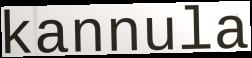
kannula